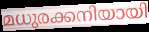
മധുരക്കനിയായി